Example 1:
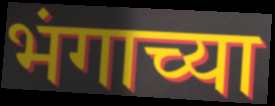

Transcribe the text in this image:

भंगाच्या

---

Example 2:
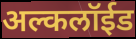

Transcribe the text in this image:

अल्कलॉईड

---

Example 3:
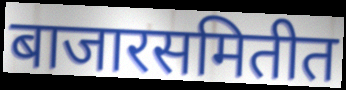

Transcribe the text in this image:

बाजारसमितीत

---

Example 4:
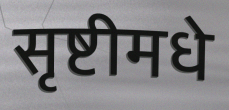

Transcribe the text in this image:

सृष्टीमधे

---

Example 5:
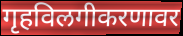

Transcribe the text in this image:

गृहविलगीकरणावर